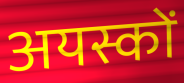
अयस्कों